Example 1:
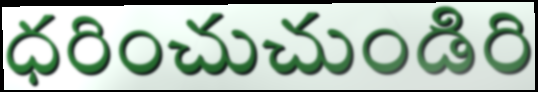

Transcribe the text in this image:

ధరించుచుండిరి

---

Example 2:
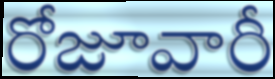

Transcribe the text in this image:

రోజూవారీ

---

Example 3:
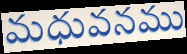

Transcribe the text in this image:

మధువనము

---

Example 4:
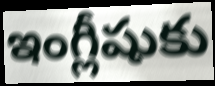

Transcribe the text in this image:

ఇంగ్లీషుకు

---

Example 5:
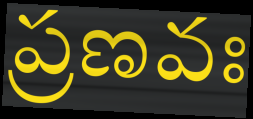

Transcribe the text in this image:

ప్రణవః